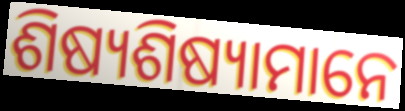
ଶିଷ୍ୟଶିଷ୍ୟାମାନେ